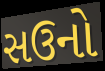
સઉનો